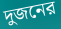
দুজনের